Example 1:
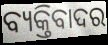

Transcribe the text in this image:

ବ୍ୟକ୍ତିବାଦର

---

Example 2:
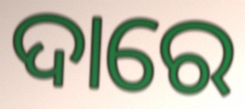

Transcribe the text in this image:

ଦାରେ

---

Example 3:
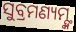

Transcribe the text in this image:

ସୁବ୍ରମଣ୍ୟମ୍ଙ୍କ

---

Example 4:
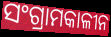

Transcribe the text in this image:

ସଂଗ୍ରାମକାଳୀନ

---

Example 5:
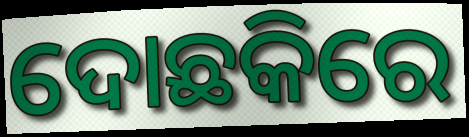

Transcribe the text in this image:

ଦୋଛକିରେ